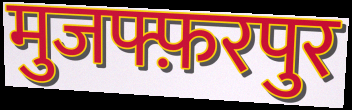
मुजफ्फ़रपुर